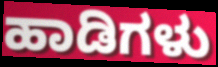
ಹಾಡಿಗಳು